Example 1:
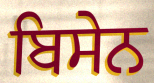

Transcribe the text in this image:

ਬਿਸੇਨ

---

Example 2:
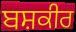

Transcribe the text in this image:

ਬਸ਼ਕੀਰ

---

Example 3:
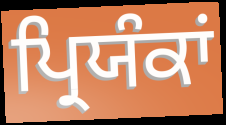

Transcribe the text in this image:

ਪ੍ਰਿਯੰਕਾਂ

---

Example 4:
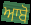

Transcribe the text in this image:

ਆਬੋ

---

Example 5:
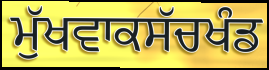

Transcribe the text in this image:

ਮੁੱਖਵਾਕਸੱਚਖੰਡ